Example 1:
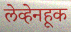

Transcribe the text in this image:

लेव्हेनहूक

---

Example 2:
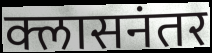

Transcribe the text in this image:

क्लासनंतर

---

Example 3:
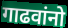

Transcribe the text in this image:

गाढवांनो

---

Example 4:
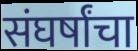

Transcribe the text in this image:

संघर्षांचा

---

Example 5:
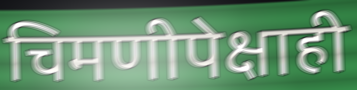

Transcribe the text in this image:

चिमणीपेक्षाही